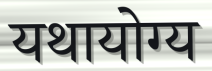
यथायोग्य